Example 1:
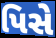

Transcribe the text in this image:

પિસે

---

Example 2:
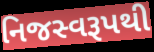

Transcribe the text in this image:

નિજસ્વરૂપથી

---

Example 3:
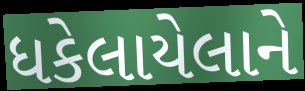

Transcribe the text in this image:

ધકેલાયેલાને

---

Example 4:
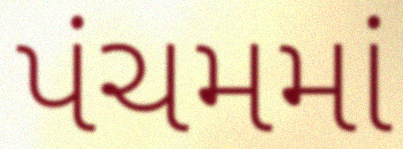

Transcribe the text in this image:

પંચમમાં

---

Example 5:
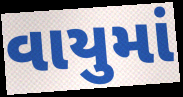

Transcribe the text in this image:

વાયુમાં